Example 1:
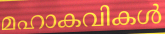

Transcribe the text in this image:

മഹാകവികൾ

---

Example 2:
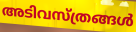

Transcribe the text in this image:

അടിവസ്ത്രങ്ങൾ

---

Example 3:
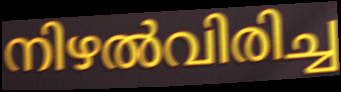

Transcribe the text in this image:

നിഴൽവിരിച്ച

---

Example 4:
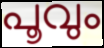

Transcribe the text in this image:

പൂവും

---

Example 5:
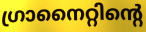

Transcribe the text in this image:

ഗ്രാനൈറ്റിന്റെ